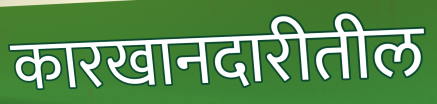
कारखानदारीतील